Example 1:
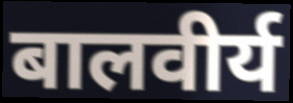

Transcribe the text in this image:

बालवीर्य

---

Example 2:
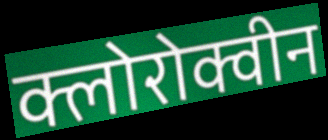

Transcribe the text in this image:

क्लोरोक्वीन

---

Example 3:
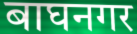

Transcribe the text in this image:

बाघनगर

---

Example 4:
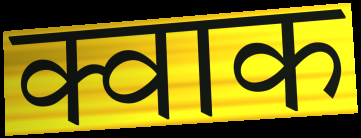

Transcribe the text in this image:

क्वाक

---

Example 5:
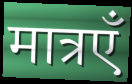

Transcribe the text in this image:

मात्रएँ